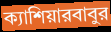
ক্যাশিয়ারবাবুর